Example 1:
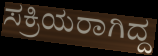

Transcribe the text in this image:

ಸಕ್ರಿಯರಾಗಿದ್ದ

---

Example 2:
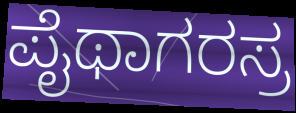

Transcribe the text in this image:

ಪೈಥಾಗರಸ್ರ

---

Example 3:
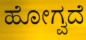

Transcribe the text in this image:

ಹೋಗ್ವದೆ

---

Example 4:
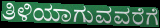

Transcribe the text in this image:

ತಿಳಿಯಾಗುವವರೆಗೆ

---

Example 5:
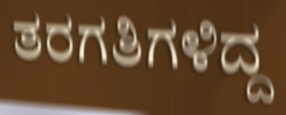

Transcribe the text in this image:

ತರಗತಿಗಳಿದ್ದ